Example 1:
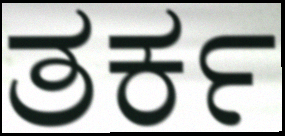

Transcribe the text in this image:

ತರ್ಕ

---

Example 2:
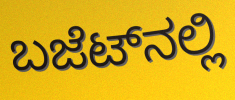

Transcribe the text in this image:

ಬಜೆಟ್‌ನಲ್ಲಿ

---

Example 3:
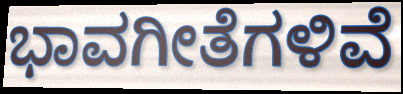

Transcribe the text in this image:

ಭಾವಗೀತೆಗಳಿವೆ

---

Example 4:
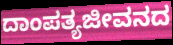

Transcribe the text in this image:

ದಾಂಪತ್ಯಜೀವನದ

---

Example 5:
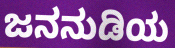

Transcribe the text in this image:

ಜನನುಡಿಯ